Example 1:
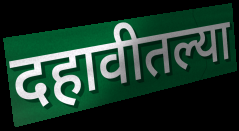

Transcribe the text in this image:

दहावीतल्या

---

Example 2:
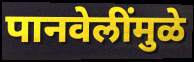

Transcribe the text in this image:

पानवेलींमुळे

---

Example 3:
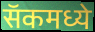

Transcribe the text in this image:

सॅकमध्ये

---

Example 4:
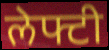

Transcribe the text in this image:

लेफ्टी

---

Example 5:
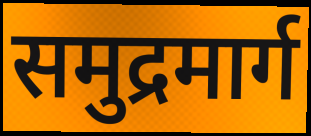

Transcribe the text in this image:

समुद्रमार्ग